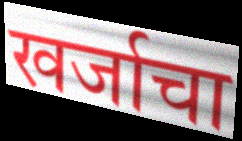
खर्जाचा